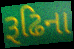
રૂઢિના